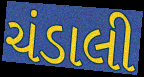
ચંડાલી